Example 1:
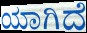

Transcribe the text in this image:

ಯಾಗಿದೆ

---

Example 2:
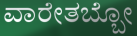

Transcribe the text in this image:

ವಾರೇತಬ್ಬೋ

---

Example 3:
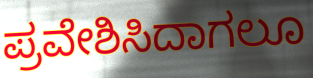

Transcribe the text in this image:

ಪ್ರವೇಶಿಸಿದಾಗಲೂ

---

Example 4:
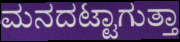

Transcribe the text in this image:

ಮನದಟ್ಟಾಗುತ್ತಾ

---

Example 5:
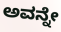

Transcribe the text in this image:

ಅವನ್ನೇ